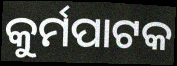
କୁର୍ମପାଟକ